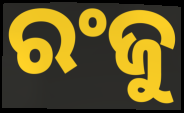
ରଂଜୁ